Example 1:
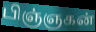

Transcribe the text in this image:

பிஞ்ஞகன்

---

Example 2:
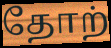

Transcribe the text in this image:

தோற்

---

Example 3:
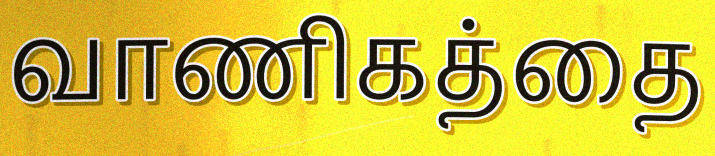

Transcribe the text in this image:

வாணிகத்தை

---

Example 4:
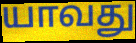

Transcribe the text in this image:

யாவது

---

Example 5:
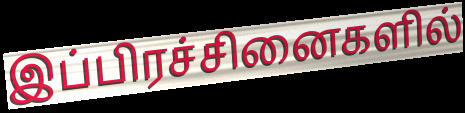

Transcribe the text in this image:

இப்பிரச்சினைகளில்